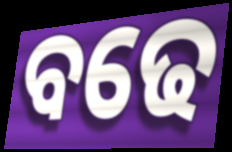
ବଢେ